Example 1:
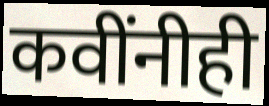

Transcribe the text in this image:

कवींनीही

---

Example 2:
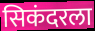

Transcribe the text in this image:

सिकंदरला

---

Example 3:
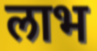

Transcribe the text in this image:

लाभ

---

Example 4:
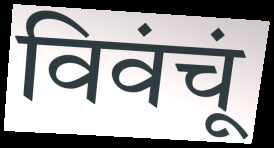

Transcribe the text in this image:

विवंचूं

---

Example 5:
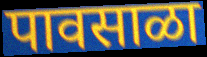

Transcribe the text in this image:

पावसाळा